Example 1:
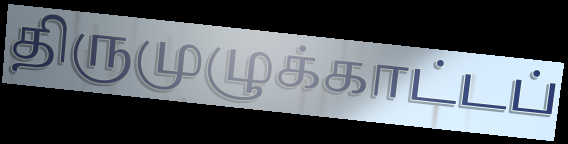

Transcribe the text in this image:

திருமுழுக்காட்டப்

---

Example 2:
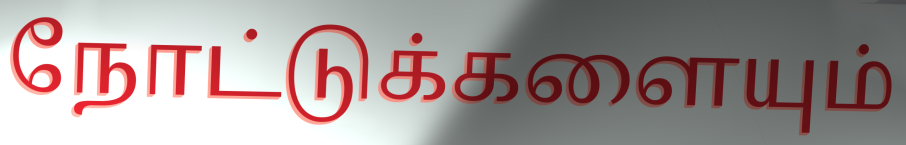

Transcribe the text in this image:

நோட்டுக்களையும்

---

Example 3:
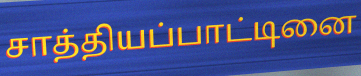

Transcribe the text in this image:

சாத்தியப்பாட்டினை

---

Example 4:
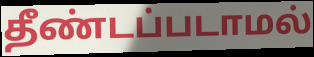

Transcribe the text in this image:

தீண்டப்படாமல்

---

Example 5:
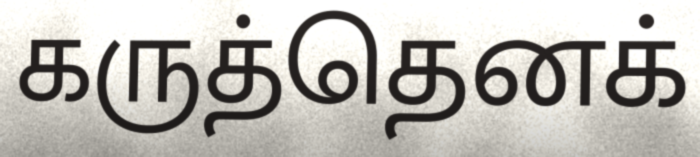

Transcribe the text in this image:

கருத்தெனக்